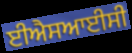
ਈਐਸਆਈਸੀ